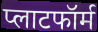
प्लाटफॉर्म